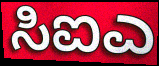
ಸಿಐಎ